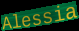
Alessia